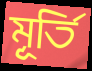
মূৰ্তি